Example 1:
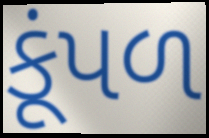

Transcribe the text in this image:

કૂંપળ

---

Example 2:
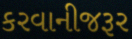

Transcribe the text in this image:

કરવાનીજરૂર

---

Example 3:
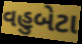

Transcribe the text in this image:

વહુબેટા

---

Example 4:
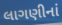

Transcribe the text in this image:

લાગણીનાં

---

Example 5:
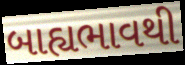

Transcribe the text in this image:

બાહ્યભાવથી